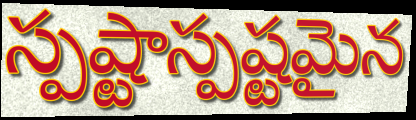
స్పష్టాస్పష్టమైన